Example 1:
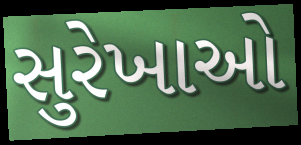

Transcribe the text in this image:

સુરેખાઓ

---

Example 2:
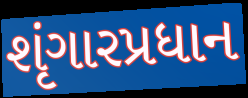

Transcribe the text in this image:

શૃંગારપ્રધાન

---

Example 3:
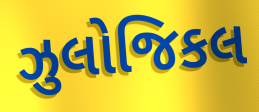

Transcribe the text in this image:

ઝુલોજિકલ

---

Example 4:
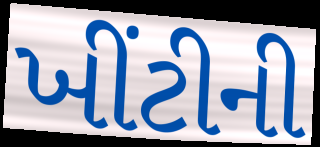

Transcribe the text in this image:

ખીંટીની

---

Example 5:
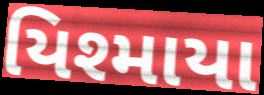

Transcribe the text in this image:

યિશ્માયા